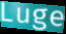
Luge